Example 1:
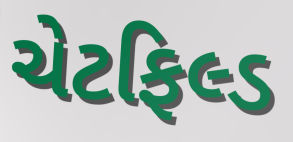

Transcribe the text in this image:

ચેટફિલ્ડ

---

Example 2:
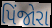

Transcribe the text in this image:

પિંજોરા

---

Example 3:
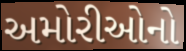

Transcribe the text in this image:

અમોરીઓનો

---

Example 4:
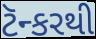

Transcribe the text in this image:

ટૅન્કરથી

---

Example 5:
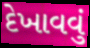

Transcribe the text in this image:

દેખાવવું